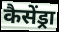
कैसेंड्रा